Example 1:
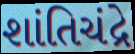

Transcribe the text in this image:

શાંતિચંદ્રે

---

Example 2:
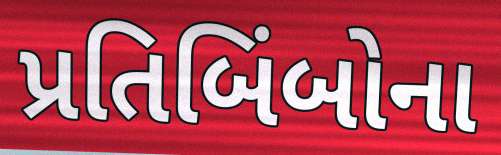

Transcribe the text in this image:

પ્રતિબિંબોના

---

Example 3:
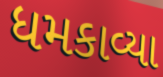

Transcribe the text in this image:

ધમકાવ્યા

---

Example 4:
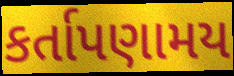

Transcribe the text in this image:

કર્તાપણામય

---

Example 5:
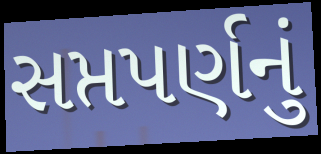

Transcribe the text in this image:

સપ્તપર્ણનું